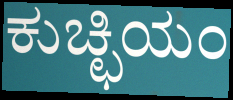
ಕುಚ್ಛಿಯಂ